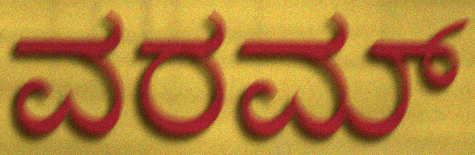
ವರಮ್